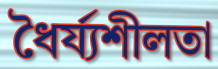
ধৈর্য্যশীলতা